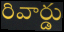
రివార్డు